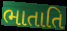
ભાતાતિ